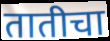
तातीचा